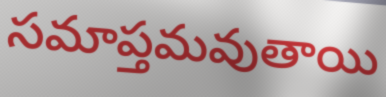
సమాప్తమవుతాయి